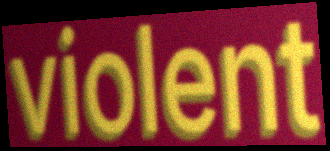
violent